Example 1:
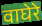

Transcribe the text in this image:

वाघेरे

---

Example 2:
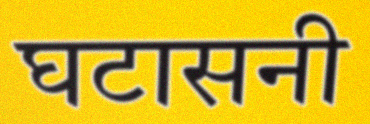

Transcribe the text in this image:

घटासनी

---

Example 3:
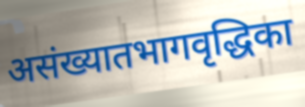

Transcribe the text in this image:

असंख्यातभागवृद्धिका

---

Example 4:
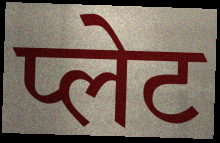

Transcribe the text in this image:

प्‍लेट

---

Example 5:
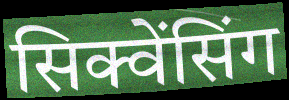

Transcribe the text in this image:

सिक्‍वेंसिंग